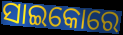
ସାଇକୋରେ